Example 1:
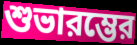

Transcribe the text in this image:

শুভারম্ভের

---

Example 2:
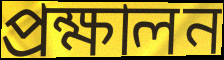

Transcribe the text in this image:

প্রক্ষালন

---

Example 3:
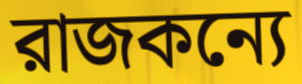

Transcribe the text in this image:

রাজকন্যে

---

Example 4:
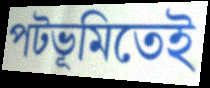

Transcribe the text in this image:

পটভূমিতেই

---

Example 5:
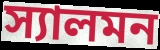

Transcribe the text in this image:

স্যালমন